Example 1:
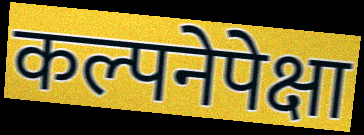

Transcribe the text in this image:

कल्पनेपेक्षा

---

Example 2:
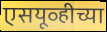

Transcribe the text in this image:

एसयूव्हीच्या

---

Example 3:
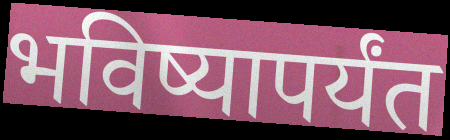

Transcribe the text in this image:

भविष्यापर्यंत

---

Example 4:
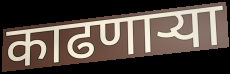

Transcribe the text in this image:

काढणार्‍या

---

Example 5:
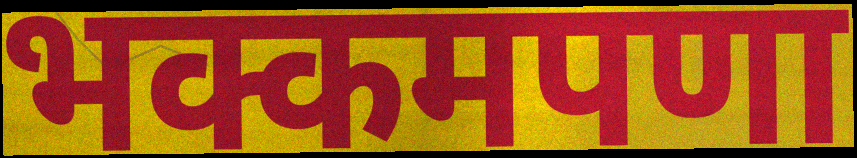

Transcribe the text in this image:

भक्कमपणा